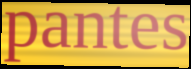
pantes